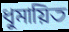
ধুমায়িত